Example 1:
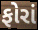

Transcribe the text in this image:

ફોરાં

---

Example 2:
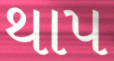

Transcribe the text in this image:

થાપ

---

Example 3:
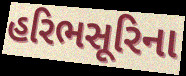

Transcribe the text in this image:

હરિભસૂરિના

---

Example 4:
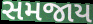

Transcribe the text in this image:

સમજાય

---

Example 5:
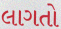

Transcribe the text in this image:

લાગતો